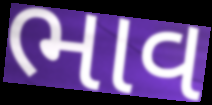
ભાવ